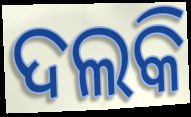
ଦଲକି